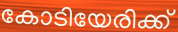
കോടിയേരിക്ക്